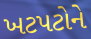
ખટપટોને